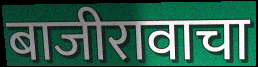
बाजीरावाचा